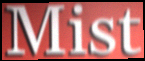
Mist